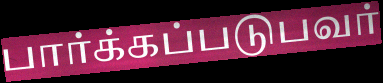
பார்க்கப்படுபவர்